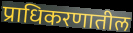
प्राधिकरणातील